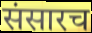
संसारच